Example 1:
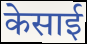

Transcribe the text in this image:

केसाई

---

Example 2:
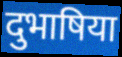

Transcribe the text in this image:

दुभाषिया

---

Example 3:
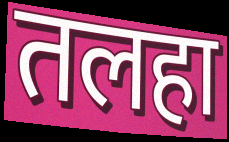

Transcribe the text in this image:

तलहा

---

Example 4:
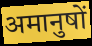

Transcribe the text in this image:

अमानुषों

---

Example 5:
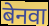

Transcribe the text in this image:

बेनवा